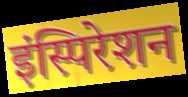
इंस्पिरेशन